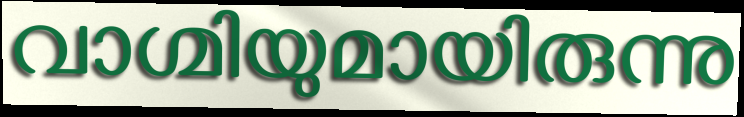
വാഗ്മിയുമായിരുന്നു